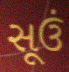
સૂઉં